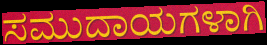
ಸಮುದಾಯಗಳಾಗಿ